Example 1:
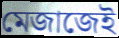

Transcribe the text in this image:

মেজাজেই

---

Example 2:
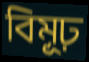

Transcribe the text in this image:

বিমূঢ়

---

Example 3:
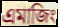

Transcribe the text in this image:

এমাজিং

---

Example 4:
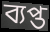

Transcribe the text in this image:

ব্যপ্ত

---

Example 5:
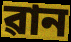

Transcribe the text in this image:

ৱান